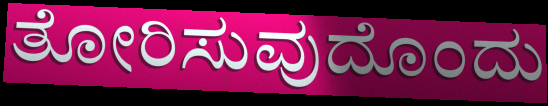
ತೋರಿಸುವುದೊಂದು